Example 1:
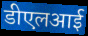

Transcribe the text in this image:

डीएलआई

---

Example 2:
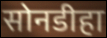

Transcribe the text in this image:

सोनडीहा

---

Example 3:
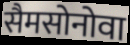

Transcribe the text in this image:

सैमसोनोवा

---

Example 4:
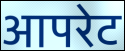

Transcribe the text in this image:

आपरेट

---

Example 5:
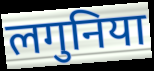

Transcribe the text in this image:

लगुनिया